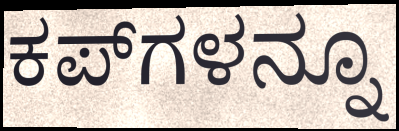
ಕಪ್‌ಗಳನ್ನೂ